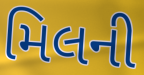
મિલની